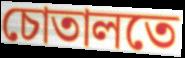
চোতালতে